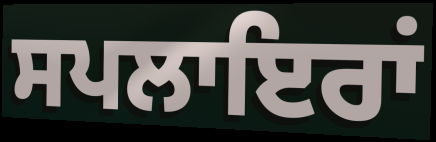
ਸਪਲਾਇਰਾਂ